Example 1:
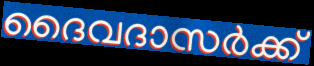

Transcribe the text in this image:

ദൈവദാസർക്ക്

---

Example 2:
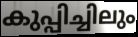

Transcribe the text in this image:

കുപ്പിച്ചിലും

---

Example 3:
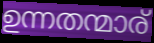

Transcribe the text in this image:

ഉന്നതന്മാര്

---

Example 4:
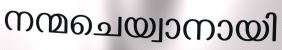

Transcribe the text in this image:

നന്മചെയ്വാനായി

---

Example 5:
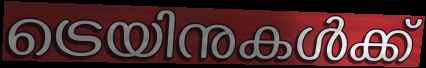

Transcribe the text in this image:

ട്രെയിനുകൾക്ക്